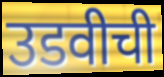
उडवीची